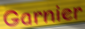
Garnier